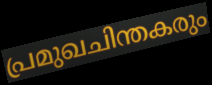
പ്രമുഖചിന്തകരും